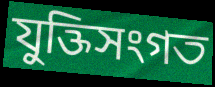
যুক্তিসংগত